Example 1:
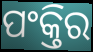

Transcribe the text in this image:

ପଂକ୍ତିର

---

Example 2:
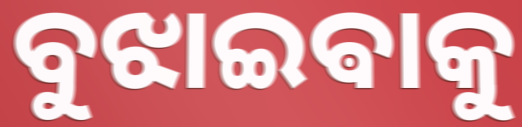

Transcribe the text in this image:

ବୁଝାଇଵାକୁ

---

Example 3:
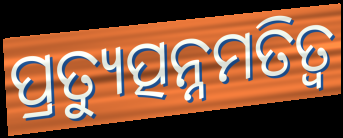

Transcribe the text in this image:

ପ୍ରତ୍ୟୁତ୍ପନ୍ନମତିତ୍ୱ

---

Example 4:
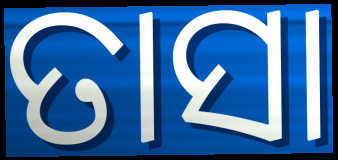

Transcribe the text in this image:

ତାସା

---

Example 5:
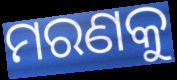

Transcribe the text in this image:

ମରଣକୁ